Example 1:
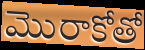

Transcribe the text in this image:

మొరాకోతో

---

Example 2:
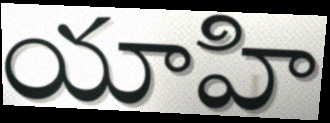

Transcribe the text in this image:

యాహి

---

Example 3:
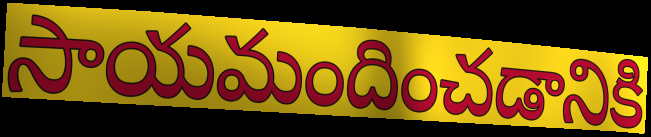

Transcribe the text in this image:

సాయమందించడానికి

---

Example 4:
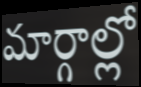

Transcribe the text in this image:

మార్గాల్లో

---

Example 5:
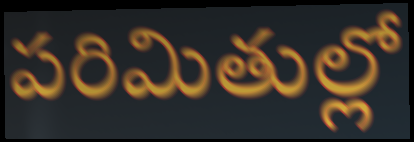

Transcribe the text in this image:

పరిమితుల్లో